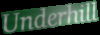
Underhill